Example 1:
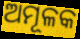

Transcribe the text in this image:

ଅମୂଳକ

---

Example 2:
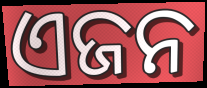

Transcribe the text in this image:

ଏଜନ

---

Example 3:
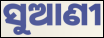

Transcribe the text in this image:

ସୁଆଣୀ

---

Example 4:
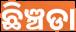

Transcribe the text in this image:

ଛିଞ୍ଚଡା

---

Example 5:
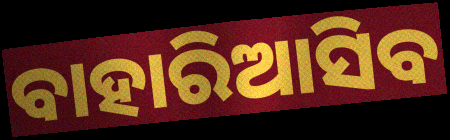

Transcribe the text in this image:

ବାହାରିଆସିବ